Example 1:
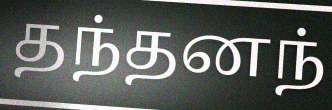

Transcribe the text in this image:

தந்தனந்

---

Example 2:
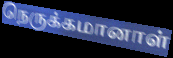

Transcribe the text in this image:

நெருக்கமானாள்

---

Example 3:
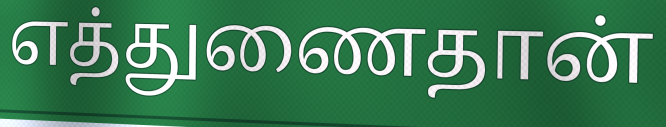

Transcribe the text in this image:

எத்துணைதான்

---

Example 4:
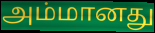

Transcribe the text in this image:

அம்மானது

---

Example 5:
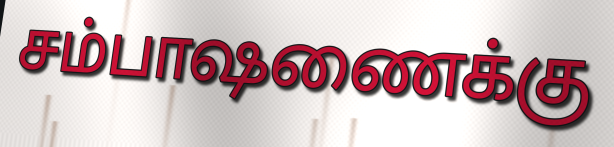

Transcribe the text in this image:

சம்பாஷணைக்கு